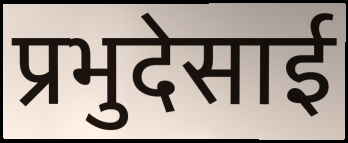
प्रभुदेसाई